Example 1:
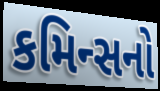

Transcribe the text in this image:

કમિન્સનો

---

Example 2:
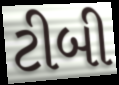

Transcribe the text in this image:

ટીબી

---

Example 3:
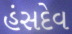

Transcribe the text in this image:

હંસદેવ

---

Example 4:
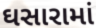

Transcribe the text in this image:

ઘસારામાં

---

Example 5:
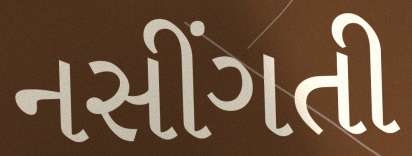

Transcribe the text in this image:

નસીંગતી